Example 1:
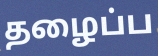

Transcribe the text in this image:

தழைப்ப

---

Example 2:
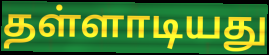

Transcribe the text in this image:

தள்ளாடியது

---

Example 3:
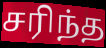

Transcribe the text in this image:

சரிந்த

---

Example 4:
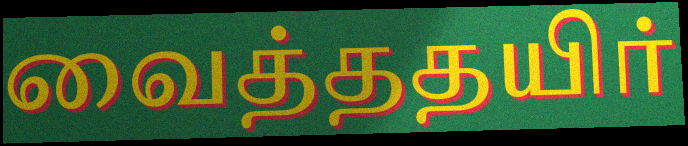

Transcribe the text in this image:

வைத்ததயிர்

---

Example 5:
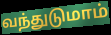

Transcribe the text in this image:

வந்துடுமாம்